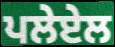
ਪਲੇਏਲ